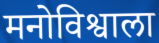
मनोविश्वाला